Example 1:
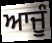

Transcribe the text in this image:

ਆਜੂੰ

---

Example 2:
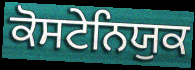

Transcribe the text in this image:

ਕੋਸਟੇਨਿਯੁਕ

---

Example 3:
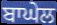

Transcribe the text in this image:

ਬਾਘੇਲ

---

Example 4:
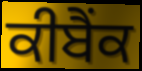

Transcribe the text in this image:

ਕੀਬੈਂਕ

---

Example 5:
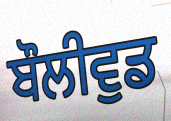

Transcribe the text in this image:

ਬੌਲੀਵੁਡ